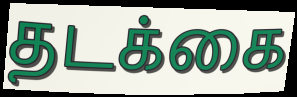
தடக்கை